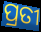
ପ୍ରତୀ